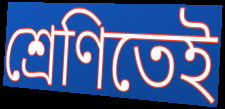
শ্রেণিতেই